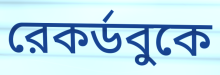
রেকর্ডবুকে